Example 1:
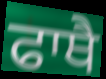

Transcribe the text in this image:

ਫਾਥੈ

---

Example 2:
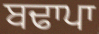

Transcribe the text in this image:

ਬਢਾਪਾ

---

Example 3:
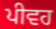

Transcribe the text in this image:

ਪੀਵਹ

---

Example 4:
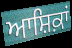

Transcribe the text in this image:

ਆਸ਼ਿਕ਼ਾਂ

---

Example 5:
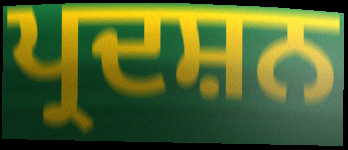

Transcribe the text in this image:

ਪ੍ਰਦਸ਼ਨ